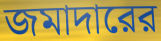
জমাদারের